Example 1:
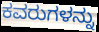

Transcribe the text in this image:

ಕವರುಗಳನ್ನು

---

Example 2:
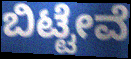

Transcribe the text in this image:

ಬಿಟ್ಟೇವೆ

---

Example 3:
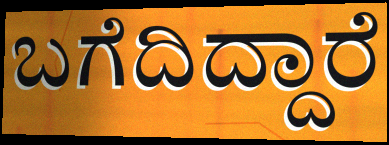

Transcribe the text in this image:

ಬಗೆದಿದ್ದಾರೆ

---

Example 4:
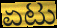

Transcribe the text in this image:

ಏಟು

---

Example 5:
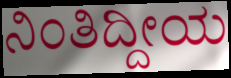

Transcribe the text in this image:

ನಿಂತಿದ್ದೀಯ